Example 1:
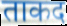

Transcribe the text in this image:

ताकद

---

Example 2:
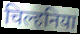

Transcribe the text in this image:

चिल्हनिया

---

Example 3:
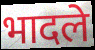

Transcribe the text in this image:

भादले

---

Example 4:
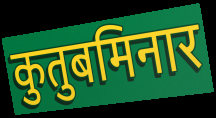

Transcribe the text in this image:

कुतुबमिनार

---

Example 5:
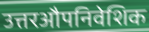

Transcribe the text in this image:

उत्तरऔपनिवेशिक